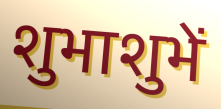
शुभाशुभें